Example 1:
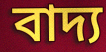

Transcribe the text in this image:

বাদ্য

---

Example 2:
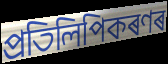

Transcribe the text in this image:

প্ৰতিলিপিকৰণৰ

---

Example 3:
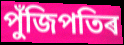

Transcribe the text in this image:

পুঁজিপতিৰ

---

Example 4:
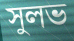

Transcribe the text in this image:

সুলভ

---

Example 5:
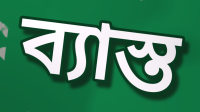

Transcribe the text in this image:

ব্যাস্ত